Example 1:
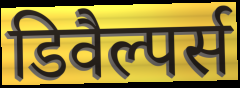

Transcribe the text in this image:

डिवैल्पर्स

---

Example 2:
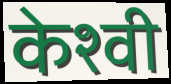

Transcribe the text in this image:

केश्वी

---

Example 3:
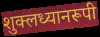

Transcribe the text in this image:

शुक्लध्यानरूपी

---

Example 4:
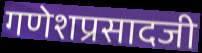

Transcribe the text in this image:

गणेशप्रसादजी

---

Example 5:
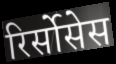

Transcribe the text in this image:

रिर्सोसेस